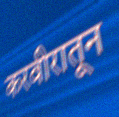
करवीरातून